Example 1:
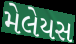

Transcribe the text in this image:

મેલેયસ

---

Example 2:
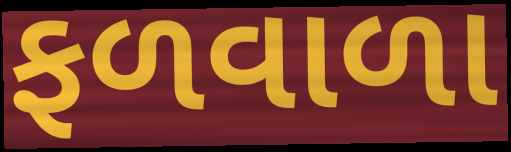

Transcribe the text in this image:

ફળવાળા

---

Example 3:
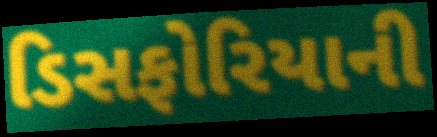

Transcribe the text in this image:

ડિસફોરિયાની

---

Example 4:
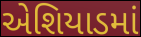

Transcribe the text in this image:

એશિયાડમાં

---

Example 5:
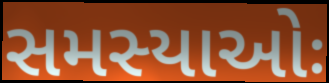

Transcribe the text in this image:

સમસ્યાઓઃ